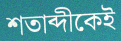
শতাব্দীকেই